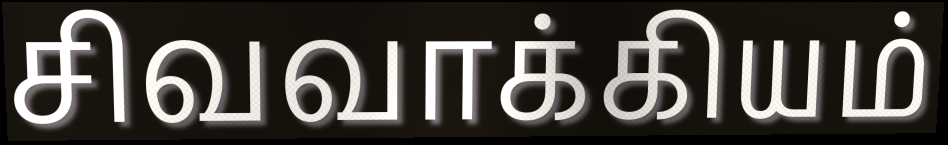
சிவவாக்கியம்